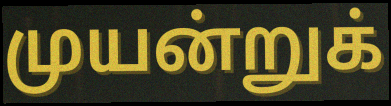
முயன்றுக்